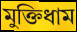
মুক্তিধাম